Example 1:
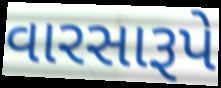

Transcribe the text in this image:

વારસારૂપે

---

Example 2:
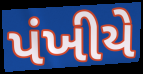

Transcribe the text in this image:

પંખીયે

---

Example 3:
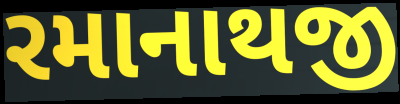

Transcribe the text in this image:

રમાનાથજી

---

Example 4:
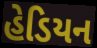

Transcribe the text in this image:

હેડિયન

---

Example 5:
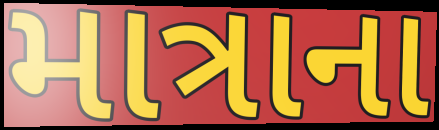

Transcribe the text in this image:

માત્રાના